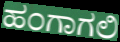
ಹಂಗಾಗಲಿ